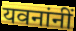
यवनांनीं